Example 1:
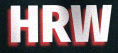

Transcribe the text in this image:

HRW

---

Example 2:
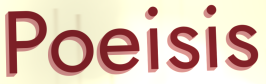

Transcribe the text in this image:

Poeisis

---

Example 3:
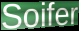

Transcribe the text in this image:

Soifer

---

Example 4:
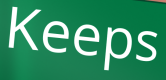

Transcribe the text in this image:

Keeps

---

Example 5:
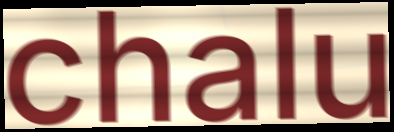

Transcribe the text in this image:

chalu